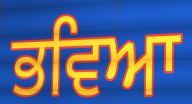
ਭਵਿਆ